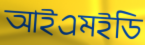
আইএমইডি